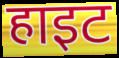
हाइट